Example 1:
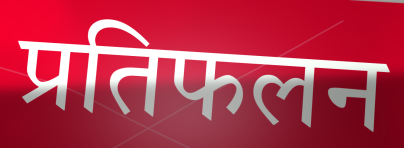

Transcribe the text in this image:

प्रतिफलन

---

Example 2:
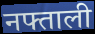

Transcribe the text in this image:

नफ्ताली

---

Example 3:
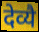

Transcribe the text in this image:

देव्यै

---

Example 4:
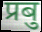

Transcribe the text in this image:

प्रबु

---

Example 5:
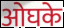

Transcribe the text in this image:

ओघके